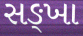
સઙ્ખા